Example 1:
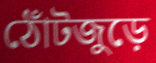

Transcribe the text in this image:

ঠোঁটজুড়ে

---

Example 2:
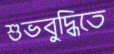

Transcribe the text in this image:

শুভবুদ্ধিতে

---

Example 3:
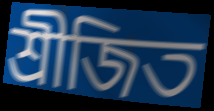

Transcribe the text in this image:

শ্রীজিত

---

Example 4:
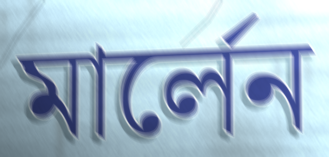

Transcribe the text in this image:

মার্লেন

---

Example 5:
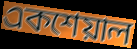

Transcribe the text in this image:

একশেয়াল